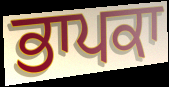
ਭਾਪਕਾ